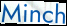
Minch